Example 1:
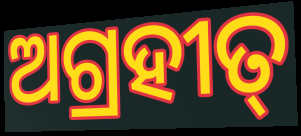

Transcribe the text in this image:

ଅଗ୍ରହୀତ୍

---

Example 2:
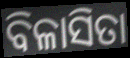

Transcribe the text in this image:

ବିଳାସିତା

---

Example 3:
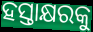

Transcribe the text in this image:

ହସ୍ତାକ୍ଷରକୁ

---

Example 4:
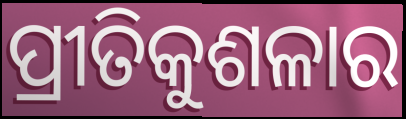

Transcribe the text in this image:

ପ୍ରୀତିକୁଶଳାର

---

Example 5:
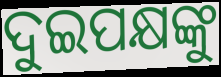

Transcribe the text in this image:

ଦୁଇପକ୍ଷଙ୍କୁ